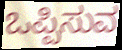
ಒಪ್ಪಿಸುವ